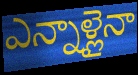
ఎన్నాళ్లైనా